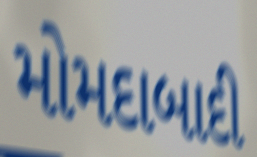
મોમદાબાદી